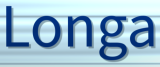
Longa